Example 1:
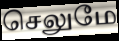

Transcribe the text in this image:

செலுமே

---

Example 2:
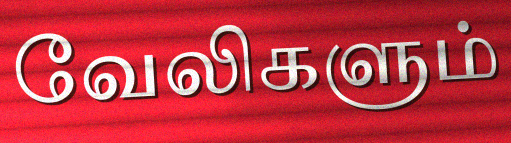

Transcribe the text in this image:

வேலிகளும்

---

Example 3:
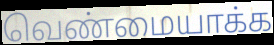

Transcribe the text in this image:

வெண்மையாக்க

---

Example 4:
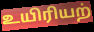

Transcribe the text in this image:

உயிரியற்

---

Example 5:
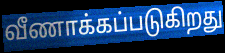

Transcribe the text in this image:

வீணாக்கப்படுகிறது